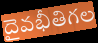
దైవభీతిగల